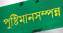
পুষ্টিমানসম্পন্ন